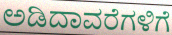
ಅಡಿದಾವರೆಗಳಿಗೆ